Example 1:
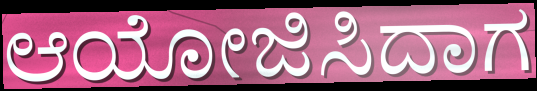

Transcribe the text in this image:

ಆಯೋಜಿಸಿದಾಗ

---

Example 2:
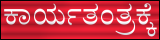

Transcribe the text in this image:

ಕಾರ್ಯತಂತ್ರಕ್ಕೆ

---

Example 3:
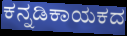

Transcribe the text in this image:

ಕನ್ನಡಿಕಾಯಕದ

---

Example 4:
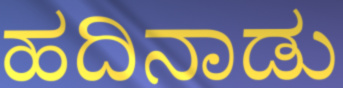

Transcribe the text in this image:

ಹದಿನಾಡು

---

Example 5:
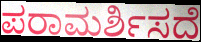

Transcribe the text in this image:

ಪರಾಮರ್ಶಿಸದೆ